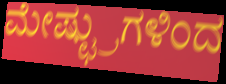
ಮೇಷ್ಟ್ರುಗಳಿಂದ